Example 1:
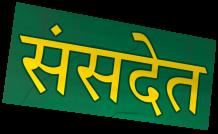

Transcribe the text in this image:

संसदेत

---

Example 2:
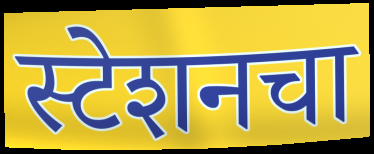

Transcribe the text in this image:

स्टेशनचा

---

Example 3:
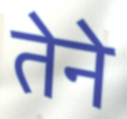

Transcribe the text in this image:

तेने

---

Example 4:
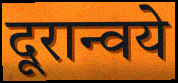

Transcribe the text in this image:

दूरान्वये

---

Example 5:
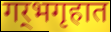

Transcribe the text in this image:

गर्भगृहात